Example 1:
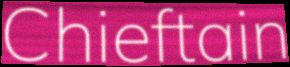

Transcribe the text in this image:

Chieftain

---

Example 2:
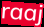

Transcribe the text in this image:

raaj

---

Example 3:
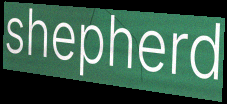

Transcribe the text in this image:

shepherd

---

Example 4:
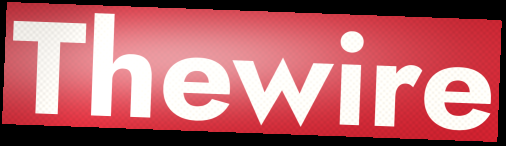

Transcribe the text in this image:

Thewire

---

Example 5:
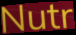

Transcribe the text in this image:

Nutr